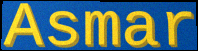
Asmar